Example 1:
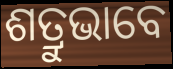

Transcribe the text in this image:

ଶତ୍ରୁଭାବେ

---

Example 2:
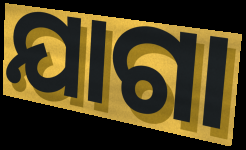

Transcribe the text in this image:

ଯାଗା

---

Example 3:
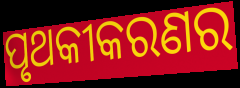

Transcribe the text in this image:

ପୃଥକୀକରଣର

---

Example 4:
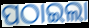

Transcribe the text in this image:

ପଠାଇଲା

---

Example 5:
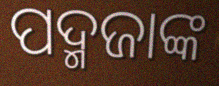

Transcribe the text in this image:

ପଦ୍ମଜାଙ୍କ